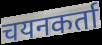
चयनकर्ता